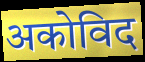
अकोविद